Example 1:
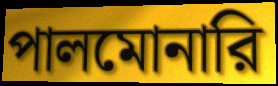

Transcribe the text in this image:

পালমোনারি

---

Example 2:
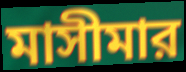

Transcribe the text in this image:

মাসীমার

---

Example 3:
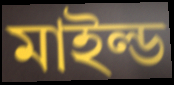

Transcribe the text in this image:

মাইল্ড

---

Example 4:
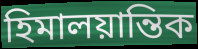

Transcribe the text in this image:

হিমালয়ান্তিক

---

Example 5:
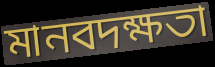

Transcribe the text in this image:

মানবদক্ষতা